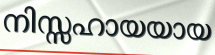
നിസ്സഹായയായ